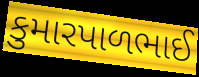
કુમારપાળભાઈ